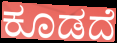
ಕೂಡದೆ